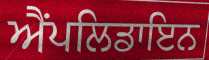
ਐੰਪਲਿਡਾਇਨ